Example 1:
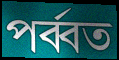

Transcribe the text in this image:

পর্ব্বত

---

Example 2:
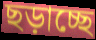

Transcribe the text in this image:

ছড়াচ্ছে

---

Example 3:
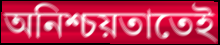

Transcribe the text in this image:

অনিশ্চয়তাতেই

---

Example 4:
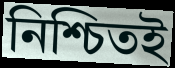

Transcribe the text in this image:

নিশ্চিতই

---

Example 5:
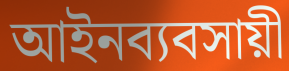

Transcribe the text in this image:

আইনব্যবসায়ী